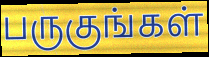
பருகுங்கள்